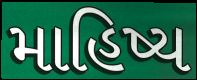
માહિષ્ય